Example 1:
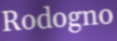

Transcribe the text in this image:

Rodogno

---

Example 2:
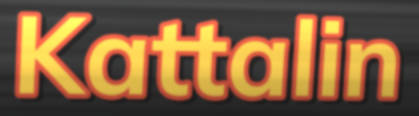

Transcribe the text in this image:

Kattalin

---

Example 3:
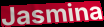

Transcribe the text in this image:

Jasmina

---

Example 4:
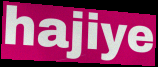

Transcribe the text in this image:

hajiye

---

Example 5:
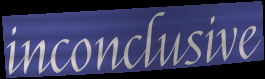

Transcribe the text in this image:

inconclusive